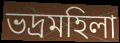
ভদ্রমহিলা